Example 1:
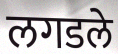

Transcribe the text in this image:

लगडले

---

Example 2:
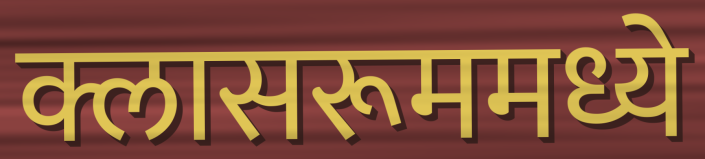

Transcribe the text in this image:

क्लासरूममध्ये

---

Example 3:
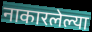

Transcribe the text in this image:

नाकारलेल्या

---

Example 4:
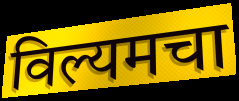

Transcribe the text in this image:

विल्यमचा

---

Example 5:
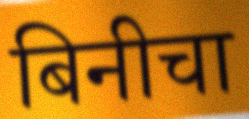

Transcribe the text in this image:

बिनीचा